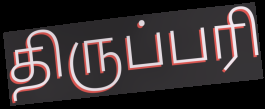
திருப்பரி